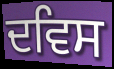
ਦਵਿਸ